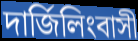
দার্জিলিংবাসী